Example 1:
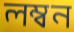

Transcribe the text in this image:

লম্বন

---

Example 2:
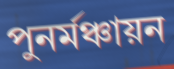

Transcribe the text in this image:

পুনর্মঞ্চায়ন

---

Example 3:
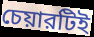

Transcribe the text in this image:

চেয়ারটিই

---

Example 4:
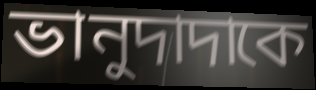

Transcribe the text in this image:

ভানুদাদাকে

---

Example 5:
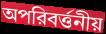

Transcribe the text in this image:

অপরিবর্ত্তনীয়